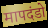
मापदंडो